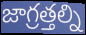
జాగ్రత్తల్ని